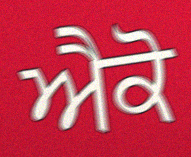
ਐਕੋ